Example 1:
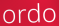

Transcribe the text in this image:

ordo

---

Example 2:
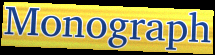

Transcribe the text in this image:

Monograph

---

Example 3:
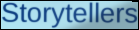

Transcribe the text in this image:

Storytellers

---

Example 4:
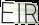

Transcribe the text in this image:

EIR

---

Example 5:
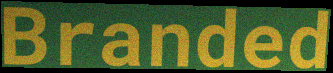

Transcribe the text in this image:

Branded